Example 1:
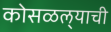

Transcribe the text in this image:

कोसळल्याची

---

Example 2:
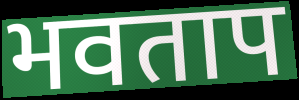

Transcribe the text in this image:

भवताप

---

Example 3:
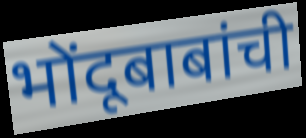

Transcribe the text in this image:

भोंदूबाबांची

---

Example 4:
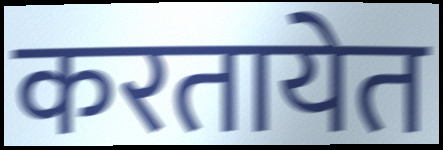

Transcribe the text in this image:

करतायेत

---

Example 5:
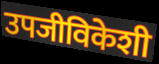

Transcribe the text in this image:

उपजीविकेशी